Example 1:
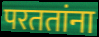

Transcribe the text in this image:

परततांना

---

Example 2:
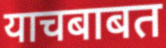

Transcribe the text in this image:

याचबाबत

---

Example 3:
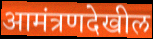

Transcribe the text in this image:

आमंत्रणदेखील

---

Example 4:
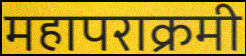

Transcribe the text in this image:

महापराक्रमी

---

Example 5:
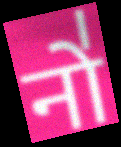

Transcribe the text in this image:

नो॑